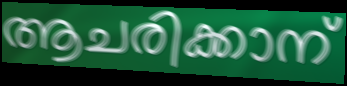
ആചരിക്കാന്